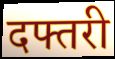
दफ्तरी